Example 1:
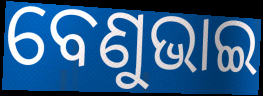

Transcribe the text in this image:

ବେଣୁଭାଇ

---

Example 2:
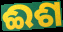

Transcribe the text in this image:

ଈଶ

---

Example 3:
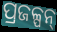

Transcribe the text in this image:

ପ୍ରଜଳ୍ପନ୍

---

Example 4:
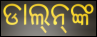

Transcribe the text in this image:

ଡାଲ୍‌ନ୍‌ଙ୍କ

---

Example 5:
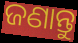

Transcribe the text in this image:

ଜଣାନ୍ତୁ